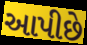
આપીછે